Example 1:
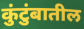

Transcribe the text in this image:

कुंटुंबातील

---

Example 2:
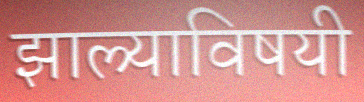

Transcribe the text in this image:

झाल्याविषयी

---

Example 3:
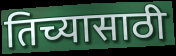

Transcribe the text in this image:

तिच्यासाठी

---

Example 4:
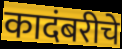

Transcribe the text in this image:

कादंबरीचे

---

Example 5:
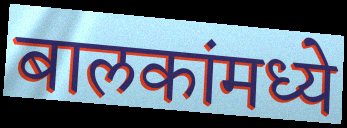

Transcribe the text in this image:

बालकांमध्ये